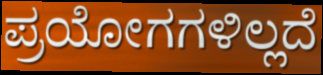
ಪ್ರಯೋಗಗಳಿಲ್ಲದೆ